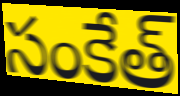
సంకేత్